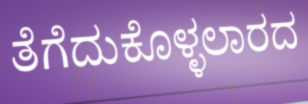
ತೆಗೆದುಕೊಳ್ಳಲಾರದ